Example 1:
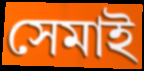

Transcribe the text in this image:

সেমাই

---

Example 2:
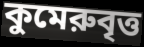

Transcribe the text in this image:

কুমেরুবৃত্ত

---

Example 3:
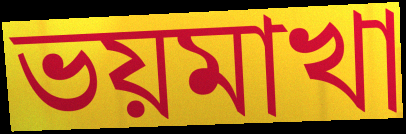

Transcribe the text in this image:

ভয়মাখা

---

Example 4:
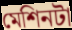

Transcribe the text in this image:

মেশিনটা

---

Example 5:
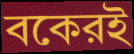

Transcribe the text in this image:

বকেরই